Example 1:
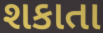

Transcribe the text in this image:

શકાતા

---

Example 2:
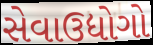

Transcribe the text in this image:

સેવાઉદ્યોગો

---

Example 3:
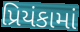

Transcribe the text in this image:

પ્રિયંકામાં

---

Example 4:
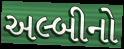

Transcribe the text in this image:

અલ્બીનો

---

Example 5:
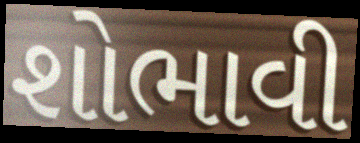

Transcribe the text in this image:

શોભાવી